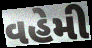
વહેમી